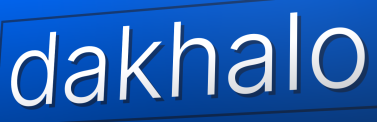
dakhalo